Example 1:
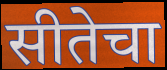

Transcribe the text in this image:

सीतेचा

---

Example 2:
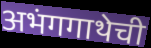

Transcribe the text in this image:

अभंगगाथेची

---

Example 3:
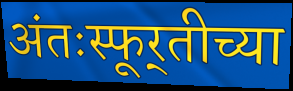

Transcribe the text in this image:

अंतःस्फूर्तीच्या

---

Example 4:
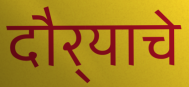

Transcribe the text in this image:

दौर्‍याचे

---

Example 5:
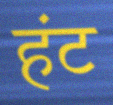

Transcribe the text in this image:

हंट